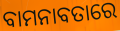
ବାମନାବତାରେ